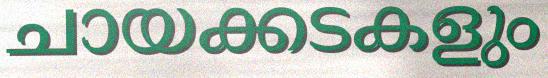
ചായക്കടകളും